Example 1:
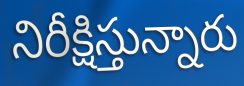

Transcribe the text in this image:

నిరీక్షిస్తున్నారు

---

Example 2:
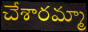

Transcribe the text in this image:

చేశారమ్మా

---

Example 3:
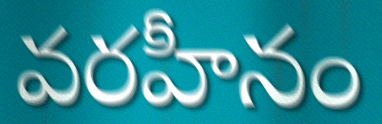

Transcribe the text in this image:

వరహీనం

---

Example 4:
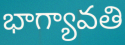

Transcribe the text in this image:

భాగ్యావతి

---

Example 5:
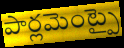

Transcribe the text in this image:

పార్లమెంట్పై